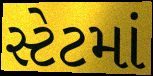
સ્ટેટમાં